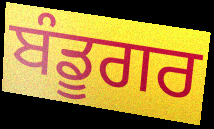
ਬੰਡੂਗਰ